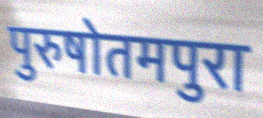
पुरुषोतमपुरा